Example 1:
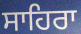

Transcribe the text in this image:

ਸਾਹਿਰਾ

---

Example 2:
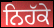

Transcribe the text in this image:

ਨਿਹੱਕੇ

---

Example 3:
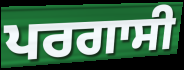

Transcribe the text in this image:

ਪਰਗਾਸੀ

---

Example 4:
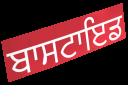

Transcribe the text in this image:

ਬਾਸਟਾਇਡ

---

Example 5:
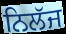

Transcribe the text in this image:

ਨਿਲੱਜ